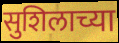
सुशिलाच्या